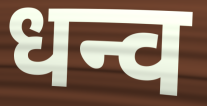
धन्व